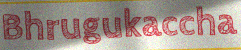
Bhrugukaccha